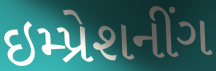
ઇમ્પ્રેશનીંગ